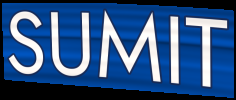
SUMIT